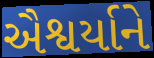
ઐશ્વર્યાને